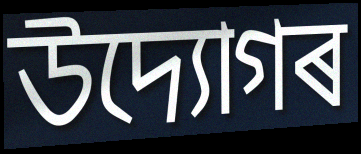
উদ্যোগৰ